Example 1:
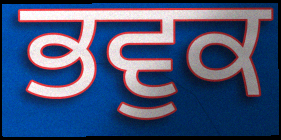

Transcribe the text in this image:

ਭਵੁਕ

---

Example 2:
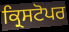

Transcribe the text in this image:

ਕ੍ਰਿਸਟੋਪਰ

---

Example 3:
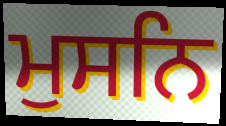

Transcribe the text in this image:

ਮੁਸਨਿ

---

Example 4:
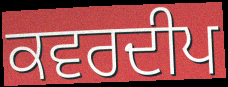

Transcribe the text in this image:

ਕਵਰਦੀਪ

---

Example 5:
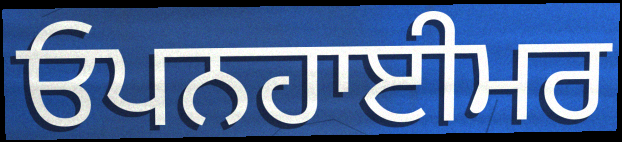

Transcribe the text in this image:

ਓਪਨਹਾਈਮਰ